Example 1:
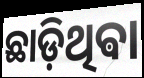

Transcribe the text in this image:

ଛାଡ଼ିଥିଵା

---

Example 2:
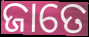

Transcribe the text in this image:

ଜାତେ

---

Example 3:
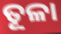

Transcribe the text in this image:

ତୂଳା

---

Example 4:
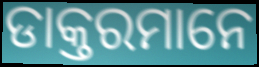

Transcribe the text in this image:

ଡାକ୍ତରମାନେ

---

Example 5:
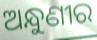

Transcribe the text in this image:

ଅନ୍ଧୁଣୀର